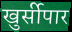
खुर्सीपार